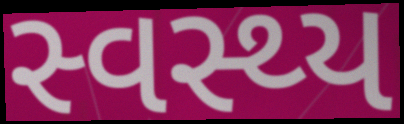
સ્વસ્થ્ય